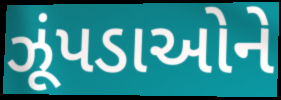
ઝૂંપડાઓને